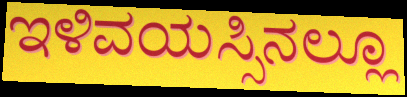
ಇಳಿವಯಸ್ಸಿನಲ್ಲೂ